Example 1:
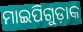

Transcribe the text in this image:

ମାଇପିଗୁଡ଼ାକ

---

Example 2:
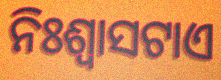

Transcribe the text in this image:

ନିଃଶ୍ଵାସଟାଏ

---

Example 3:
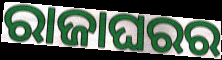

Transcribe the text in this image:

ରାଜାଘରର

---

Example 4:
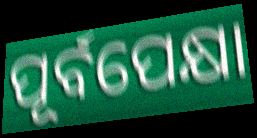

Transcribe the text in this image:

ପୂର୍ବପେକ୍ଷା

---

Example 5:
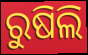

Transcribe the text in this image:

ରୁଷିଲି